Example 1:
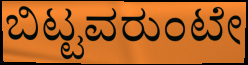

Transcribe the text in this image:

ಬಿಟ್ಟವರುಂಟೇ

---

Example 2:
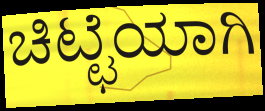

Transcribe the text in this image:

ಚಿಟ್ಟೆಯಾಗಿ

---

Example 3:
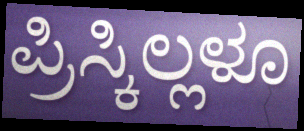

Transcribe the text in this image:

ಪ್ರಿಸ್ಕಿಲ್ಲಳೂ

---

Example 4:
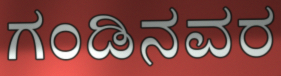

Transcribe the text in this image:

ಗಂಡಿನವರ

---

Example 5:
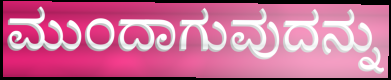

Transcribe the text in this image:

ಮುಂದಾಗುವುದನ್ನು